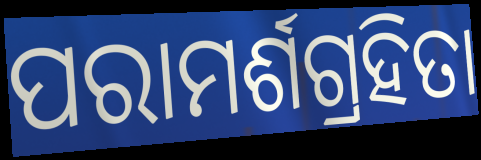
ପରାମର୍ଶଗ୍ରହିତା